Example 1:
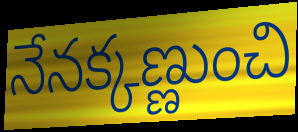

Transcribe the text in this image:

నేనక్కణ్ణుంచి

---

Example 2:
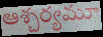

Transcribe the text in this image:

ఆశ్చర్యమూ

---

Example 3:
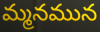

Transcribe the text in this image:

మ్మనమున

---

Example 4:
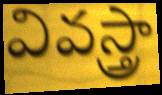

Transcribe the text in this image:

వివస్త్రా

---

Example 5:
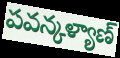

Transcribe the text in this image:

పవన్కళ్యాణ్